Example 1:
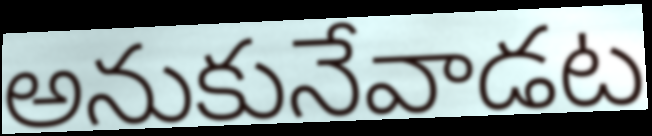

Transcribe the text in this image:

అనుకునేవాడట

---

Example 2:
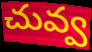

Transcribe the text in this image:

చువ్వ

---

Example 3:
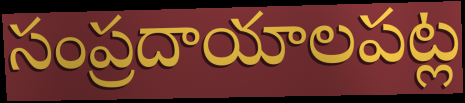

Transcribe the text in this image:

సంప్రదాయాలపట్ల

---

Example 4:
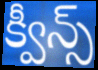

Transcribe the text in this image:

క్వీన్స్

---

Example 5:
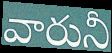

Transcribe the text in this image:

వారునీ